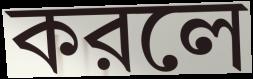
করলে